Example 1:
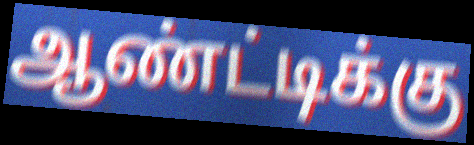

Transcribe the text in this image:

ஆண்ட்டிக்கு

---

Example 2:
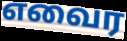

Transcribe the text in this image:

எவைர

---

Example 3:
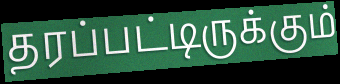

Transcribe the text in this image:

தரப்பட்டிருக்கும்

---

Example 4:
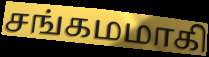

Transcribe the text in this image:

சங்கமமாகி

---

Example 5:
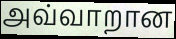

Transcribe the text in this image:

அவ்வாறான